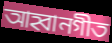
আহ্বানগীত